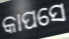
କାପସେ